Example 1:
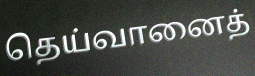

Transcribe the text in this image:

தெய்வானைத்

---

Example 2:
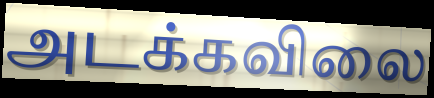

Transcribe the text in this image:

அடக்கவிலை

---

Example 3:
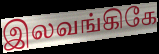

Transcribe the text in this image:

இலவங்கிகே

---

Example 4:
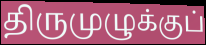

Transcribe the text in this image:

திருமுழுக்குப்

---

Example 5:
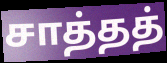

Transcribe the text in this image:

சாத்தத்